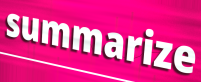
summarize